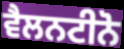
ਵੈਲਨਟੀਨੋ